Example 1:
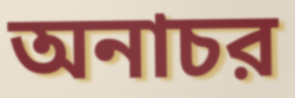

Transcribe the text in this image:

অনাচর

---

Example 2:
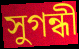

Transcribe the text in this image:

সুগন্ধী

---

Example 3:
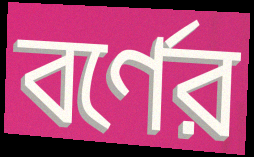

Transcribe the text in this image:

বর্ণের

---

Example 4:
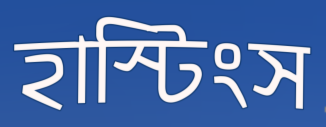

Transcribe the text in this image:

হাস্টিংস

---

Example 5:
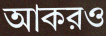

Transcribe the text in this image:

আকরও